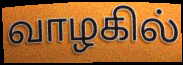
வாழகில்